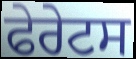
ਫੇਰੇਟਸ